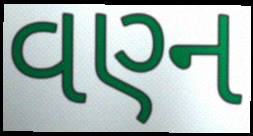
વણ્ન